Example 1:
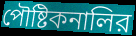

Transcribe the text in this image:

পৌষ্টিকনালির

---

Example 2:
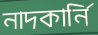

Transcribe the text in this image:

নাদকার্নি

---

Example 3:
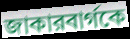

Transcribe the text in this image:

জাকারবার্গকে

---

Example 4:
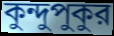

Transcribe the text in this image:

কুন্দুপুকুর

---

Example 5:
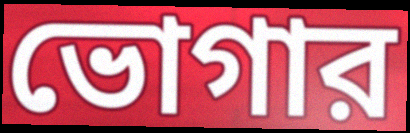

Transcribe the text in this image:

ভোগার